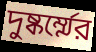
দুষ্কর্ম্মের